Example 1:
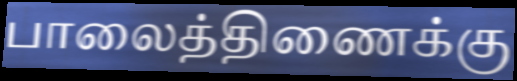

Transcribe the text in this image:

பாலைத்திணைக்கு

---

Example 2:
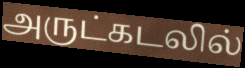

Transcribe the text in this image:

அருட்கடலில்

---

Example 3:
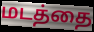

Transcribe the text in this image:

மடத்தை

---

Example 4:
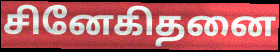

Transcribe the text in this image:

சினேகிதனை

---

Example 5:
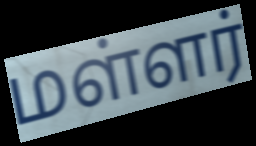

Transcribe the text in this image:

மள்ளர்